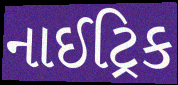
નાઈટ્રિક